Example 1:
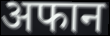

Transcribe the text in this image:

अफान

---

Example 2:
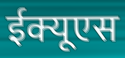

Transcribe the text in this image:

ईक्यूएस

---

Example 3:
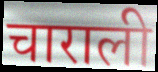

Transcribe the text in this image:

चाराली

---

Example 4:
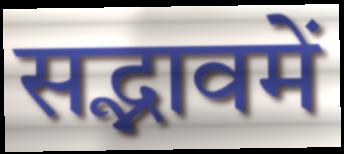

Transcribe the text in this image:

सद्भावमें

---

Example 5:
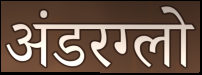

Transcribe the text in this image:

अंडरग्लो